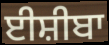
ਈਸ਼ੀਬਾ